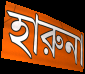
হারুনা